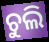
ଚୁଲି